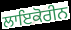
ਲਾਇਕੋਰੀਨ